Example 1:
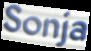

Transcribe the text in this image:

Sonja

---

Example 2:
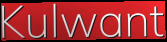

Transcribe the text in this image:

Kulwant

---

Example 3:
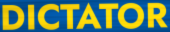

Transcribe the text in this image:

DICTATOR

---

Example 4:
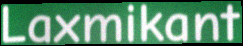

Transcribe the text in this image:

Laxmikant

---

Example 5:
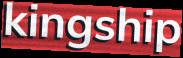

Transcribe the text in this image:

kingship